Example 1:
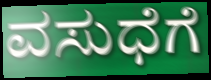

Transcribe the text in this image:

ವಸುಧೆಗೆ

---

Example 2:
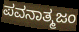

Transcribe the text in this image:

ಪವನಾತ್ಮಜಂ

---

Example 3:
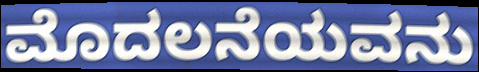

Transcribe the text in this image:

ಮೊದಲನೆಯವನು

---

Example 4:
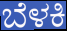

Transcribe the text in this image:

ಬೆಳಕಿ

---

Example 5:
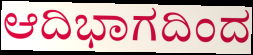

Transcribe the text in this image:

ಆದಿಭಾಗದಿಂದ